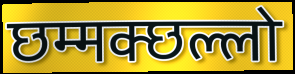
छम्मक्छल्लो